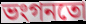
ভংগনতো